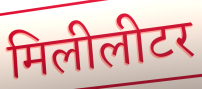
मिलीलीटर